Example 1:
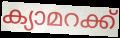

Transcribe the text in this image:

ക്യാമറക്ക്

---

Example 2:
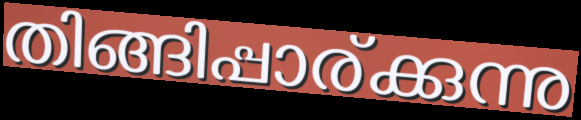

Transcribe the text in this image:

തിങ്ങിപ്പാര്ക്കുന്നു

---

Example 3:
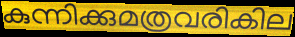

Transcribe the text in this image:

കുന്നിക്കുമത്രവരികില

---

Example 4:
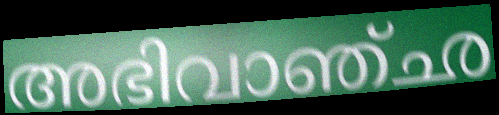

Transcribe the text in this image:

അഭിവാഞ്ഛ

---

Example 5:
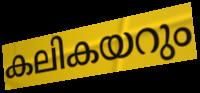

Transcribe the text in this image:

കലികയറും